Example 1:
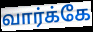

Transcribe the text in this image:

வார்க்கே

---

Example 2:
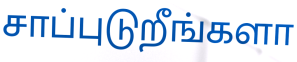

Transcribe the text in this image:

சாப்புடுறீங்களா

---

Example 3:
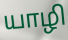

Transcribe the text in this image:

யாழி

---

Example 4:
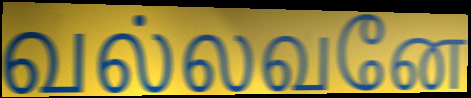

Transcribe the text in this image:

வல்லவனே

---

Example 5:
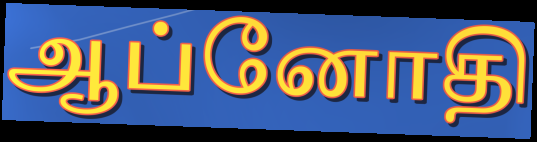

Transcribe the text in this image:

ஆப்னோதி